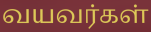
வயவர்கள்